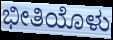
ಭೀತಿಯೊಳು